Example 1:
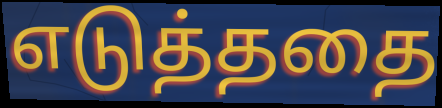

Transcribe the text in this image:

எடுத்ததை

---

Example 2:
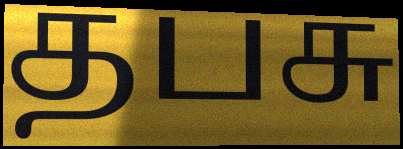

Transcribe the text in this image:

தபசு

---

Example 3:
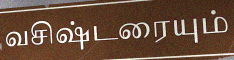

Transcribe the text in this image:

வசிஷ்டரையும்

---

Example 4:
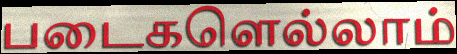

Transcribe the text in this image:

படைகளெல்லாம்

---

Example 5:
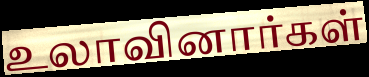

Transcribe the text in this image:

உலாவினார்கள்